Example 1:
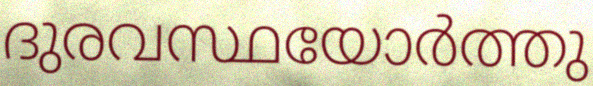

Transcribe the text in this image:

ദുരവസ്ഥയോർത്തു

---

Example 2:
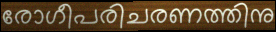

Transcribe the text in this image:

രോഗീപരിചരണത്തിനു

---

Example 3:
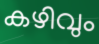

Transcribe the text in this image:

കഴിവും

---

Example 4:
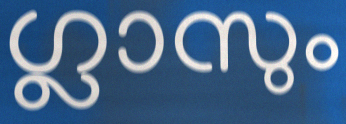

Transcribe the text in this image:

ഗ്ലാസും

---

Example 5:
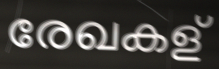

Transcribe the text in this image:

രേഖകള്